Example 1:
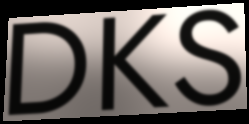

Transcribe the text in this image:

DKS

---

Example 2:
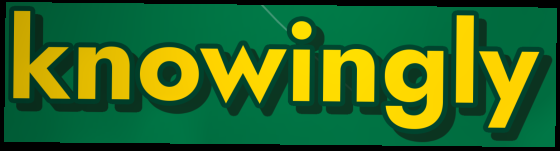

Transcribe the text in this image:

knowingly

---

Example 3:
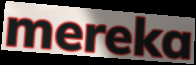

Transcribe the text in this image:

mereka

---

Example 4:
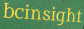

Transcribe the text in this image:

bcinsight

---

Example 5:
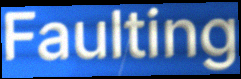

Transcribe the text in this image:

Faulting